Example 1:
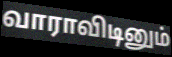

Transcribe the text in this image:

வாராவிடினும்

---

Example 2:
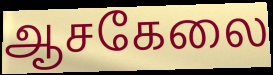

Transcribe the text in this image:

ஆசகேலை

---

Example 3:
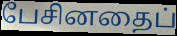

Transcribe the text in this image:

பேசினதைப்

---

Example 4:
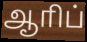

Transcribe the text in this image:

ஆரிப்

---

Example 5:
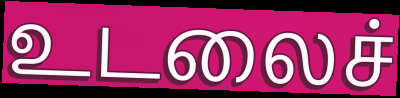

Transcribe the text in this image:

உடலைச்